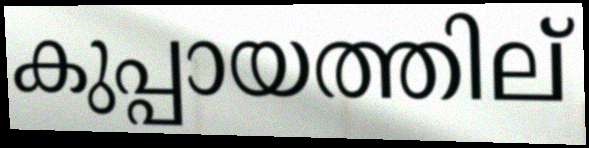
കുപ്പായത്തില്